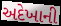
અદેખાની